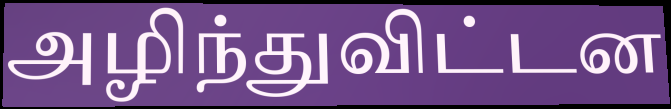
அழிந்துவிட்டன